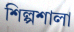
শিল্পশালা